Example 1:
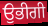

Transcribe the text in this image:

ਉਭੀਗੀ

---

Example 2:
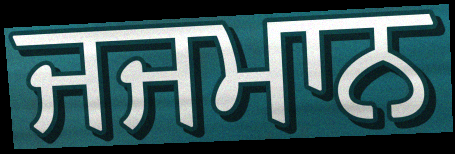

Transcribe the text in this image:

ਜਜਮਾਨ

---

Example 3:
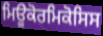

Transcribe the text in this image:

ਮਿਊਕੋਰਮਿਕੋਸਿਸ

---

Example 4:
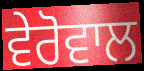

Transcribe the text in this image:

ਵੇਰੋਵਾਲ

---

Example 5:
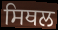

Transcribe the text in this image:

ਸਿਥਲ